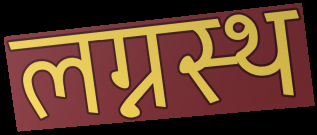
लग्नस्थ